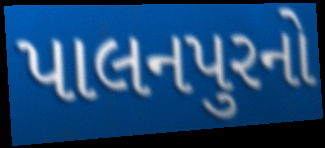
પાલનપુરનો